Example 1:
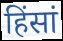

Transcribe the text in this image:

हिंसां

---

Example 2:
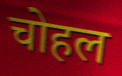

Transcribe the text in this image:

चोहल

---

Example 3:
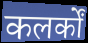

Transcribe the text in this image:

कलर्कों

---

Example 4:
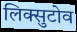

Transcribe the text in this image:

लिक्सुटोव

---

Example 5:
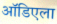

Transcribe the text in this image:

ऑडिएला